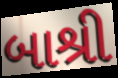
બાશ્રી